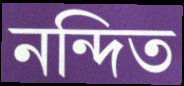
নন্দিত